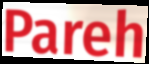
Pareh